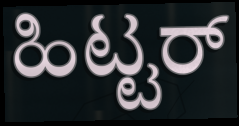
ಹಿಟ್ಟರ್